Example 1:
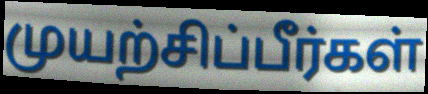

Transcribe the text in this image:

முயற்சிப்பீர்கள்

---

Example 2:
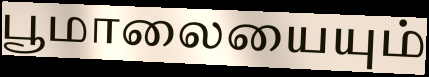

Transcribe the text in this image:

பூமாலையையும்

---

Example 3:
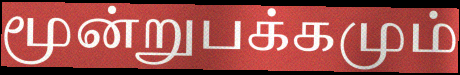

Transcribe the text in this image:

மூன்றுபக்கமும்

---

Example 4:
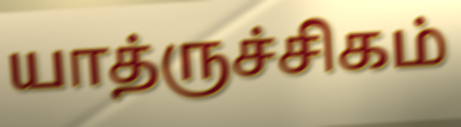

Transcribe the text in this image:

யாத்ருச்சிகம்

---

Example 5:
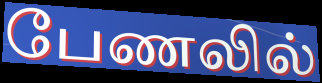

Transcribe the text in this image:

பேணலில்